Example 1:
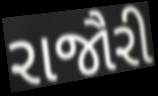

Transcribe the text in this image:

રાજૌરી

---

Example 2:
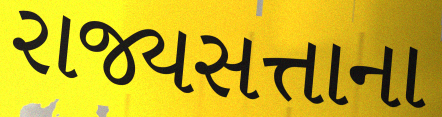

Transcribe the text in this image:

રાજ્યસત્તાના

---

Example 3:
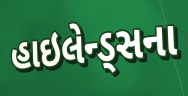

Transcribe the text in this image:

હાઇલેન્ડ્સના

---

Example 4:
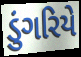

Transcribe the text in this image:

ડુંગરિયે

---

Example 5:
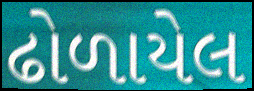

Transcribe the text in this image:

ઢોળાયેલ